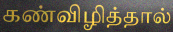
கண்விழித்தால்